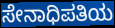
ಸೇನಾಧಿಪತಿಯ